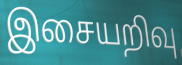
இசையறிவு